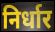
निर्धार